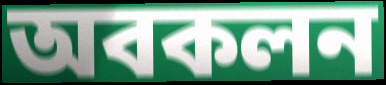
অবকলন